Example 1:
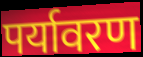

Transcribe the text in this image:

पर्यावरण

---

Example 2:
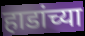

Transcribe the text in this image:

हाडांच्या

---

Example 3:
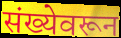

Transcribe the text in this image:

संख्येवरून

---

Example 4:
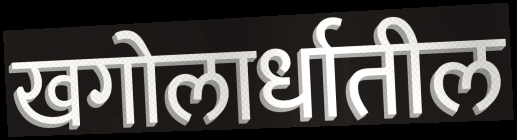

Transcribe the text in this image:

खगोलार्धातील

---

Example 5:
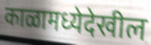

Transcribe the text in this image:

काळामध्येदेखील